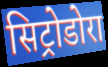
सिट्रोडोरा